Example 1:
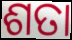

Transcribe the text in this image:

ଶତା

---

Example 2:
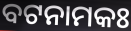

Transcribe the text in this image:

ବଟନାମକଃ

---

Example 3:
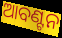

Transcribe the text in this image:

ଆବଣ୍ଟନ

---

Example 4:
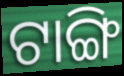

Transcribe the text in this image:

ଟାଙ୍ଗି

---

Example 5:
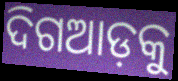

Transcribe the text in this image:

ଦିଗଆଡ଼କୁ